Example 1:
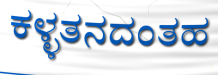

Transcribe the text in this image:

ಕಳ್ಳತನದಂತಹ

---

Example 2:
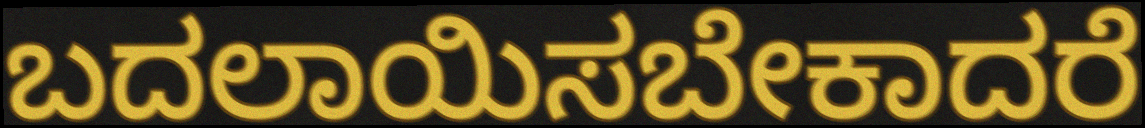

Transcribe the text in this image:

ಬದಲಾಯಿಸಬೇಕಾದರೆ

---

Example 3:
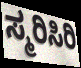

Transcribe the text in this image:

ಸ್ಮರಿಸಿರಿ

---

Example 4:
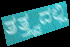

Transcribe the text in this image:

ತತ್ತ್ವದಲ್ಲಿ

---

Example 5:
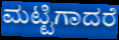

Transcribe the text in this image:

ಮಟ್ಟಿಗಾದರೆ